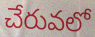
చేరువలో